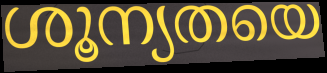
ശൂന്യതയെ